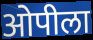
ओपीला